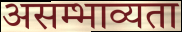
असम्भाव्यता